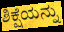
ಶಿಕ್ಷೆಯನ್ನು